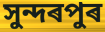
সুন্দৰপুৰ